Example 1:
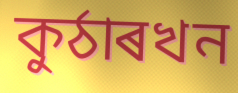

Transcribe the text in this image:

কুঠাৰখন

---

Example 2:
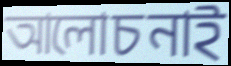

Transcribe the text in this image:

আলোচনাই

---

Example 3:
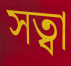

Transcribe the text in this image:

সত্বা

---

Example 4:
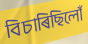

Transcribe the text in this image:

বিচাৰিছিলোঁ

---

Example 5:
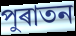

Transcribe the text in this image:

পুৰাতন